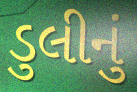
ડુલીનું